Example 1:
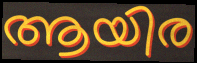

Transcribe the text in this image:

ആയിര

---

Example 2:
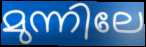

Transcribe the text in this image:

മുന്നിലേ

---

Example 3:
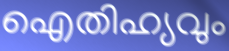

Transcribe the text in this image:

ഐതിഹ്യവും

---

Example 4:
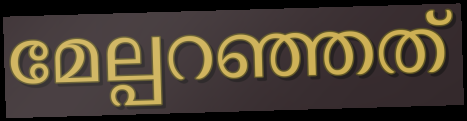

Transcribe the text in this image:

മേല്പറഞ്ഞത്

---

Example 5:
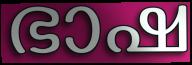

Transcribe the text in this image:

ഭാഷ